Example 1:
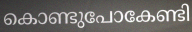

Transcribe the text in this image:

കൊണ്ടുപോകേണ്ടി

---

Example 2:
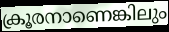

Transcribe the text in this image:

ക്രൂരനാണെങ്കിലും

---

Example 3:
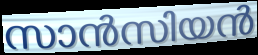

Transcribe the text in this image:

സാൻസിയൻ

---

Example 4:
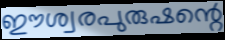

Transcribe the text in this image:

ഈശ്വരപുരുഷന്റെ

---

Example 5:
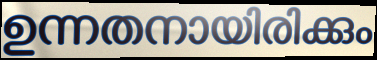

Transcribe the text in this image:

ഉന്നതനായിരിക്കും